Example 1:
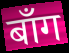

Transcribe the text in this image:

बाँग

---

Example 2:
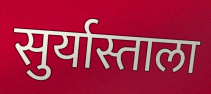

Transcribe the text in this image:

सुर्यास्ताला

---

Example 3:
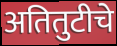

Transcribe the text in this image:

अतितुटीचे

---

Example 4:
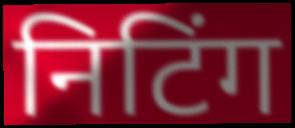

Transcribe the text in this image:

निटिंग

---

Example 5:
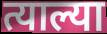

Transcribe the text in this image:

त्याल्या